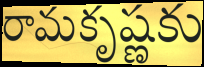
రామకృష్ణకు